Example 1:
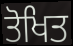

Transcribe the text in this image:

ਤੋਖਿਤ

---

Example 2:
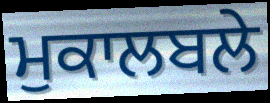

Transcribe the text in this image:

ਮੁਕਾਲਬਲੇ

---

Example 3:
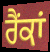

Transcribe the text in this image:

ਰੈਂਕਾਂ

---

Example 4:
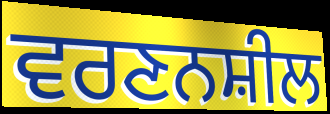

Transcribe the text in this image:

ਵਰਣਨਸ਼ੀਲ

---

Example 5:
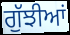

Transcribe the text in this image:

ਗੁੱਝੀਆਂ